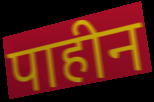
पाहीन